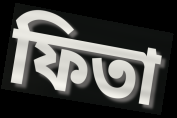
ফিতা